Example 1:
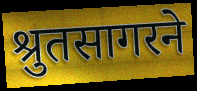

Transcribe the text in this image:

श्रुतसागरने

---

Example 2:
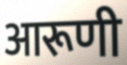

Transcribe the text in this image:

आरूणी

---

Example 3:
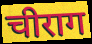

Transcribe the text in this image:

चीराग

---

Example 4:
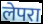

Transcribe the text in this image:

लेपरा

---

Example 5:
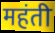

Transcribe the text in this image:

महंती